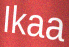
Ikaa